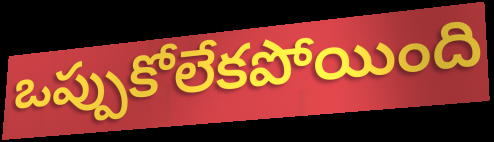
ఒప్పుకోలేకపోయింది